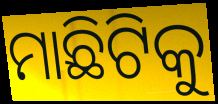
ମାଛିଟିକୁ